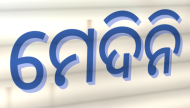
ମେଦିନି